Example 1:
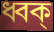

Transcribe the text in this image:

ধ্বক্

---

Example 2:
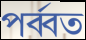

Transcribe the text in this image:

পর্ব্বত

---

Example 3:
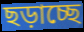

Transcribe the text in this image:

ছড়াচ্ছে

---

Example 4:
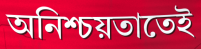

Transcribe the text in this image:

অনিশ্চয়তাতেই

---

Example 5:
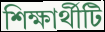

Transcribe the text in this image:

শিক্ষার্থীটি